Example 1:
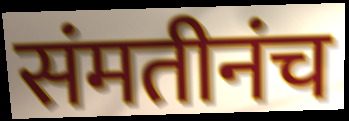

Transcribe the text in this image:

संमतीनंच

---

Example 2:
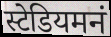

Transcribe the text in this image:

स्टेडियमनं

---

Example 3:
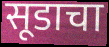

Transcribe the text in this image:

सूडाचा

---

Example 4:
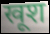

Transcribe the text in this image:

खूश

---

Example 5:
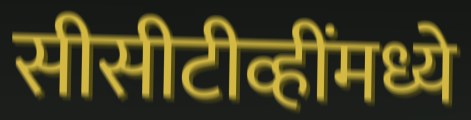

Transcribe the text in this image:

सीसीटीव्हींमध्ये